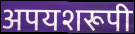
अपयशरूपी